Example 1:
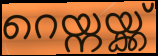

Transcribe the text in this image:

റെയ്നയ്ക്ക്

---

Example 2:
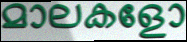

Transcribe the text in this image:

മാലകളോ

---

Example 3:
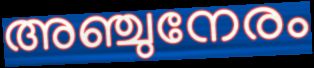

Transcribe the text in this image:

അഞ്ചുനേരം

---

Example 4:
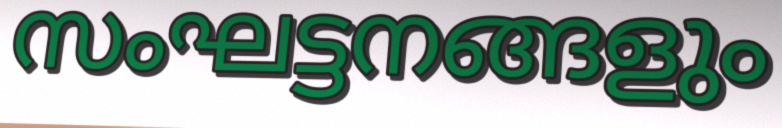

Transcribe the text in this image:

സംഘട്ടനങ്ങളും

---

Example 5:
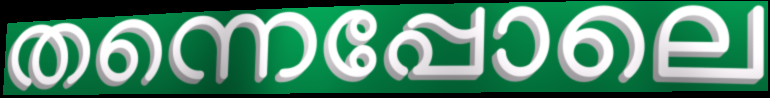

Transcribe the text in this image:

തന്നെപ്പോലെ